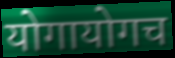
योगायोगच